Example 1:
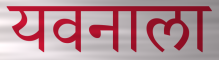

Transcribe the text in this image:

यवनाला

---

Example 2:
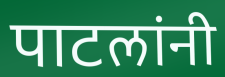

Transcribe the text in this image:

पाटलांनी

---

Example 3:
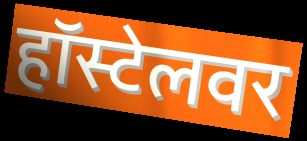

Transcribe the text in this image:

हॉस्टेलवर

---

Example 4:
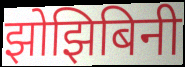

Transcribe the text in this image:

झोझिबिनी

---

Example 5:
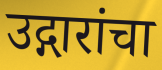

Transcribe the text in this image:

उद्गारांचा